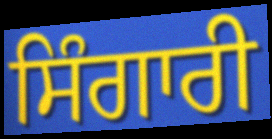
ਸਿੰਗਾਰੀ